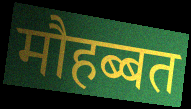
मौहब्बत